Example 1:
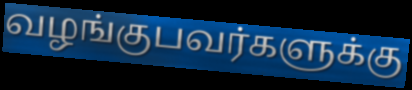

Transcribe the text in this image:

வழங்குபவர்களுக்கு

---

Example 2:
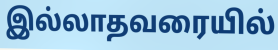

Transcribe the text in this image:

இல்லாதவரையில்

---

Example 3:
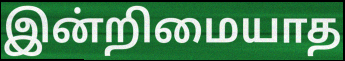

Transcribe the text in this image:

இன்றிமையாத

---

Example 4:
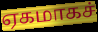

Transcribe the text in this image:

ஏகமாகச்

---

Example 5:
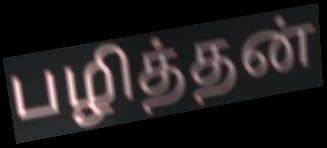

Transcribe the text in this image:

பழித்தன்